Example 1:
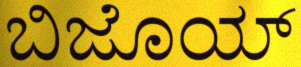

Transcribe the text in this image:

ಬಿಜೊಯ್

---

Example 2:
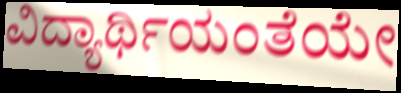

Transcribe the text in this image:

ವಿದ್ಯಾರ್ಥಿಯಂತೆಯೇ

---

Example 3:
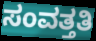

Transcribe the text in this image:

ಸಂವತ್ತತಿ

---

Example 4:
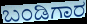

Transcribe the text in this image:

ಬಂಡಿಗಾರ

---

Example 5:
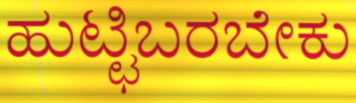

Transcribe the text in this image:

ಹುಟ್ಟಿಬರಬೇಕು